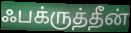
ஃபக்ருத்தீன்